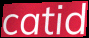
catid